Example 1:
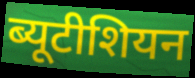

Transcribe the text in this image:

ब्यूटीशियन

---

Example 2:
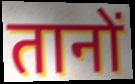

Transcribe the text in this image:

तानों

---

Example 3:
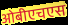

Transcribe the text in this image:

ओबीएचएस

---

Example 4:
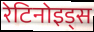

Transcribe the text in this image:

रेटिनोइड्स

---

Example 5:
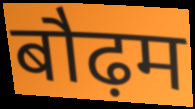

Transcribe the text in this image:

बौढ़म